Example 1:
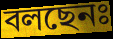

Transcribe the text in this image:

বলছেনঃ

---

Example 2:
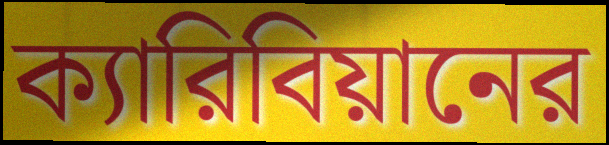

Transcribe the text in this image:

ক্যারিবিয়ানের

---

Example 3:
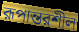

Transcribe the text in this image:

রূপান্তরশীল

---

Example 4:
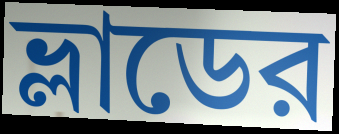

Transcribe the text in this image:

ভ্লাডের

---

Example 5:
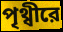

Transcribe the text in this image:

পৃথ্বীরে